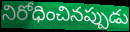
నిరోధించినప్పుడు